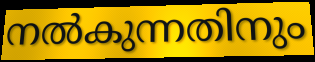
നൽകുന്നതിനും